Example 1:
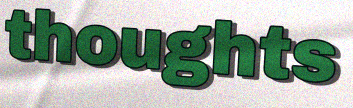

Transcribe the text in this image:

thoughts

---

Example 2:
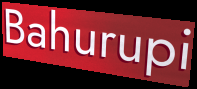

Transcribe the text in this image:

Bahurupi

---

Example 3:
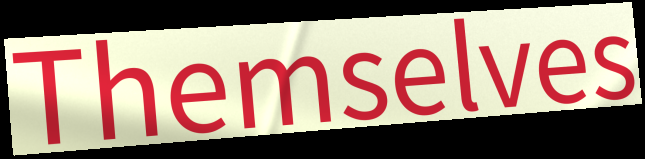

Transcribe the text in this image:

Themselves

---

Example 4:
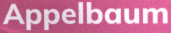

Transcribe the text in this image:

Appelbaum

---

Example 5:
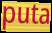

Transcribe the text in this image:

puta